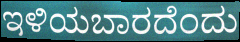
ಇಳಿಯಬಾರದೆಂದು